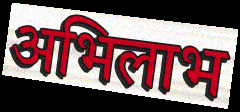
अभिलाभ